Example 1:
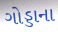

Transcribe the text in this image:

ગોડ્ડાના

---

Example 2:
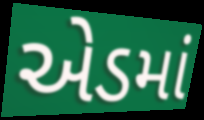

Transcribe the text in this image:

એડમાં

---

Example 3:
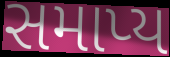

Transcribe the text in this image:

સમાપ્ય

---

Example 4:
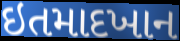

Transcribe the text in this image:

ઇતમાદખાન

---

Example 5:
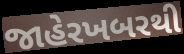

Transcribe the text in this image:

જાહેરખબરથી